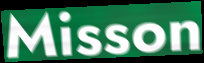
Misson